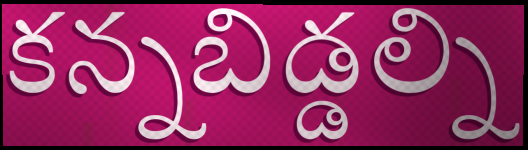
కన్నబిడ్డల్ని